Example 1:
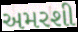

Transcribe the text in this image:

અમરશી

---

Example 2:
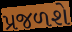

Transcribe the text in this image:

પ્રજળશે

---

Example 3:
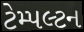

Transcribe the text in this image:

ટેમ્પલ્ટન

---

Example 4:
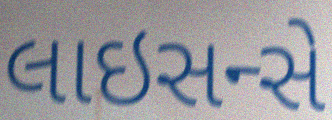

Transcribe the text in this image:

લાઇસન્સે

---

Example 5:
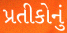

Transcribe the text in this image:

પ્રતીકોનું